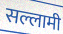
सल्लामी